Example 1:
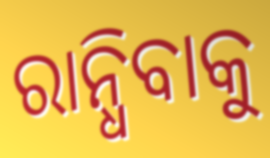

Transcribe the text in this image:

ରାନ୍ଧିବାକୁ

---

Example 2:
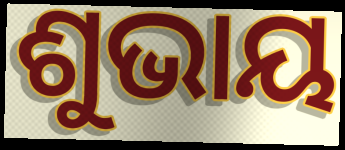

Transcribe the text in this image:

ଶୁଭାୟ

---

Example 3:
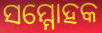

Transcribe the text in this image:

ସମ୍ମୋହକ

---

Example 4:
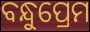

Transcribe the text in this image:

ବନ୍ଧୁପ୍ରେମ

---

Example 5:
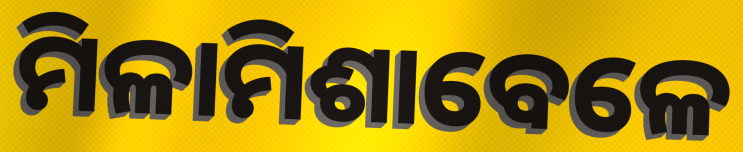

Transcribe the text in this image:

ମିଳାମିଶାବେଳେ